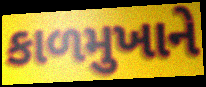
કાળમુખાને